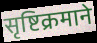
सृष्टिक्रमाने